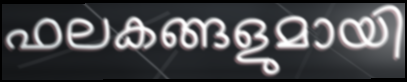
ഫലകങ്ങളുമായി